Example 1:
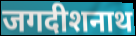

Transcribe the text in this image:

जगदीशनाथ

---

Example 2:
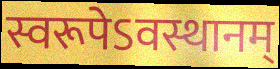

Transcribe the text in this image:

स्वरूपेऽवस्थानम्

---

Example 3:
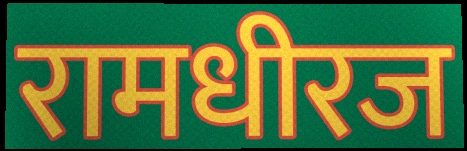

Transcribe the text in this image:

रामधीरज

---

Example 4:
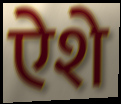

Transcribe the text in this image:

ऐशे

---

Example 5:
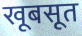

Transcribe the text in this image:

खूबसूत